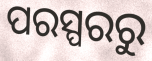
ପରସ୍ପରରୁ